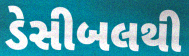
ડેસીબલથી